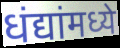
धंद्यांमध्ये